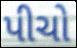
પીચો